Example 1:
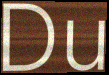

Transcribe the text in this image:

Du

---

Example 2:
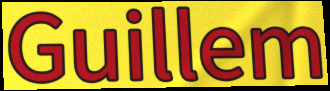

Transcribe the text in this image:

Guillem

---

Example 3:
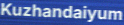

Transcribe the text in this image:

Kuzhandaiyum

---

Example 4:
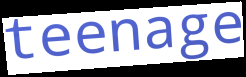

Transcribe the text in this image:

teenage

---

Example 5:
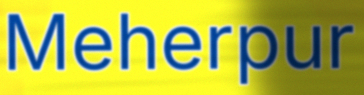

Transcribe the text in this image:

Meherpur